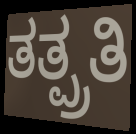
ತತ್ಪ್ರತಿ